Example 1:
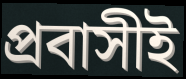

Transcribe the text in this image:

প্রবাসীই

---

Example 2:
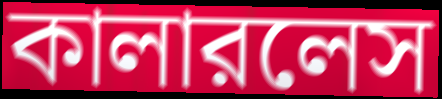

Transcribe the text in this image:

কালারলেস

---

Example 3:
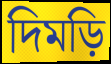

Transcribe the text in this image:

দিমড়ি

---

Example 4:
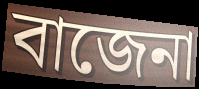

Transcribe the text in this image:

বাজেনা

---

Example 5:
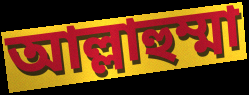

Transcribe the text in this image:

আল্লাহুম্মা